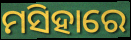
ମସିହାରେ